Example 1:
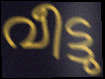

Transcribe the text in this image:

വീട്ടു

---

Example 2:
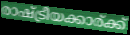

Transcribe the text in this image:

രാഷ്ട്രീയക്കാര്ക്ക്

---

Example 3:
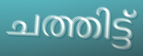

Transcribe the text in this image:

ചത്തിട്ട്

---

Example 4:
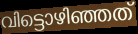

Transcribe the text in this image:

വിട്ടൊഴിഞ്ഞത്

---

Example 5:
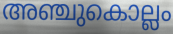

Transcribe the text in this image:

അഞ്ചുകൊല്ലം